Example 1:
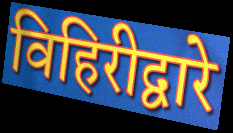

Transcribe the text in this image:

विहिरीद्वारे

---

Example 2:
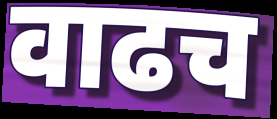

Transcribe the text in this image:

वाढच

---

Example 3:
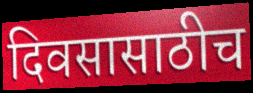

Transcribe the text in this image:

दिवसासाठीच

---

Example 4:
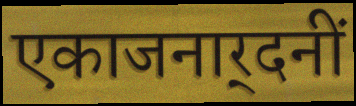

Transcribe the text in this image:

एकाजनार्दनीं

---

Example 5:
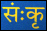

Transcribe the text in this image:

संःकृ